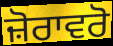
ਜ਼ੋਰਾਵਰੋ